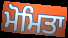
ਮੋਮਿਤਾ